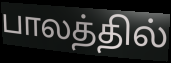
பாலத்தில்